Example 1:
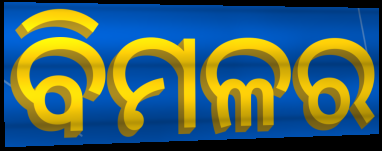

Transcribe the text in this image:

ବିମଳର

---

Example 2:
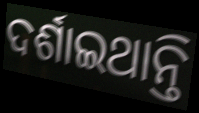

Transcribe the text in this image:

ଦର୍ଶାଇଥାନ୍ତି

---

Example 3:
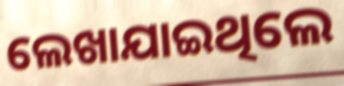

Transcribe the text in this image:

ଲେଖାଯାଇଥିଲେ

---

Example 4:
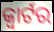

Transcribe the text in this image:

କ୍ଵାର୍ଟର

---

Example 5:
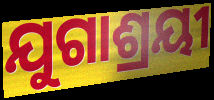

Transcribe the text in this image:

ଯୁଗାଶ୍ରୟୀ